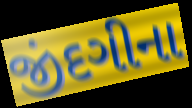
જીંદગીના